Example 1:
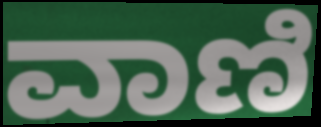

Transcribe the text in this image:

ವಾಣಿ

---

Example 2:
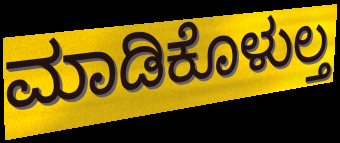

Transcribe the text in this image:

ಮಾಡಿಕೊಳುಲ್ತ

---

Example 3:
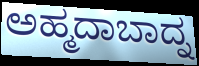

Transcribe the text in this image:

ಅಹ್ಮದಾಬಾದ್ನ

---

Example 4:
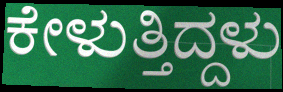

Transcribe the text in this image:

ಕೇಳುತ್ತಿದ್ದಳು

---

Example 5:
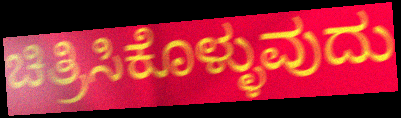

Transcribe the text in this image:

ಚಿತ್ರಿಸಿಕೊಳ್ಳುವುದು